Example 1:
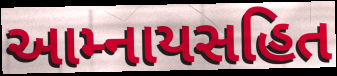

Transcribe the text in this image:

આમ્નાયસહિત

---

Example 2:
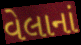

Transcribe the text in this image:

વેલાનાં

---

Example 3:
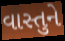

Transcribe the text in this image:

વાસ્તુને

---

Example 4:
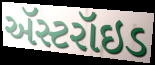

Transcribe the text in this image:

ઍસ્ટરૉઇડ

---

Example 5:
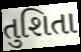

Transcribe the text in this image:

તુશિતા